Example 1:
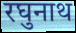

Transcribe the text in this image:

रघुनाथ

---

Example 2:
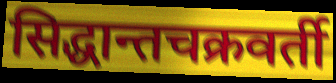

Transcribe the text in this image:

सिद्धान्तचक्रवर्ती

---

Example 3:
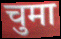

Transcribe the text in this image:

चुमा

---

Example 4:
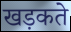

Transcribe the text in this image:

खड़कते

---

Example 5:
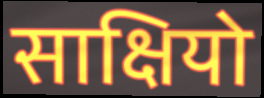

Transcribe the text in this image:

साक्षियो